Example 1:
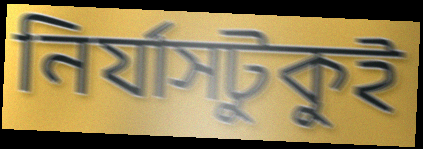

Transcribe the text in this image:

নির্যাসটুকুই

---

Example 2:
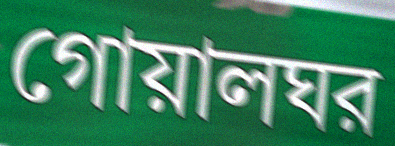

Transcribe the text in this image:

গোয়ালঘর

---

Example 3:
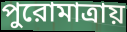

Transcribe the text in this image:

পুরোমাত্রায়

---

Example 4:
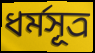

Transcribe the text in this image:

ধর্মসূত্র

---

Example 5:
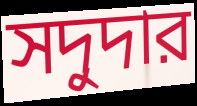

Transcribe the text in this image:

সদুদার